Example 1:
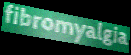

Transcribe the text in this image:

fibromyalgia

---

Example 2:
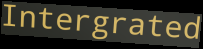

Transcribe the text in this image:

Intergrated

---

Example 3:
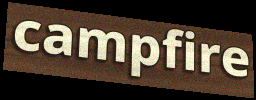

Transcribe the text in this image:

campfire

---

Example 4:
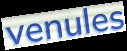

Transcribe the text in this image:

venules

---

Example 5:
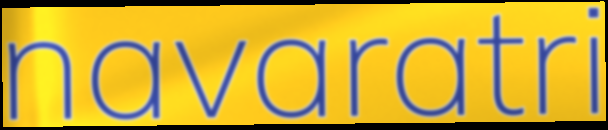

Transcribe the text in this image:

navaratri